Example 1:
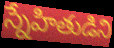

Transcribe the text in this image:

స్నేహితుడిని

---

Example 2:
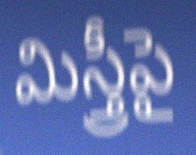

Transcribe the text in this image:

మిస్త్రీపై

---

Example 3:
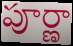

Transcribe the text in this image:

పూర్ణా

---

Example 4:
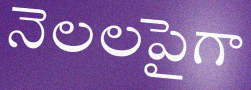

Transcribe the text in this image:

నెలలపైగా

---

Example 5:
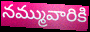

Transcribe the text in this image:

నమ్మువారికి